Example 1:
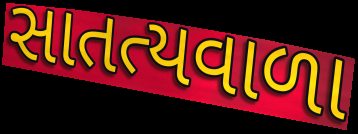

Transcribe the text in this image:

સાતત્યવાળા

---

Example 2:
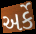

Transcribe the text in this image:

અર્કે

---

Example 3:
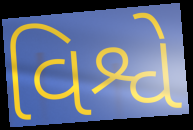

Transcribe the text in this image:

વિશ્વે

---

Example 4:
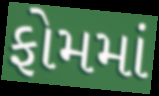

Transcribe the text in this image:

ફોમમાં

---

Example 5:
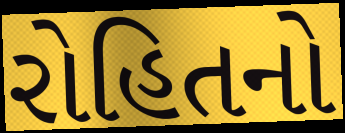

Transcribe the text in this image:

રોહિતનો